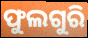
ଫୁଲଗୁରି